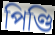
পিণ্ডি